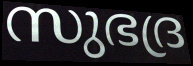
സുഭദ്ര